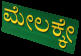
ಮೇಲಕ್ಕೇ